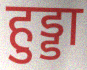
हुड्डा